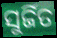
ସୁର୍ଜିତ